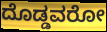
ದೊಡ್ಡವರೋ